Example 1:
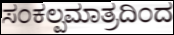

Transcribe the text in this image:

ಸಂಕಲ್ಪಮಾತ್ರದಿಂದ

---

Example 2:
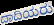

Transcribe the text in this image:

ದಾದಿಯರು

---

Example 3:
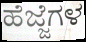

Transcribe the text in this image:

ಹೆಜ್ಜೆಗಳ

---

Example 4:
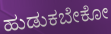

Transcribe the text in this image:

ಹುಡುಕಬೇಕೋ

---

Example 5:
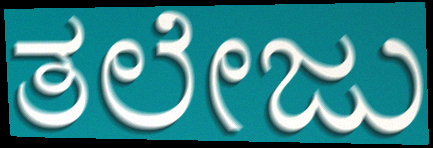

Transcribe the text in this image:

ತಲೇಜು